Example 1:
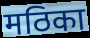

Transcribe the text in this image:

मठिका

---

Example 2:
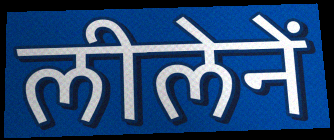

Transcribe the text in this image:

लीलेनें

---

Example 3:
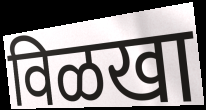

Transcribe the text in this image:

विळखा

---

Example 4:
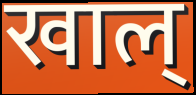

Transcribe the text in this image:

खाल्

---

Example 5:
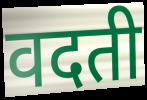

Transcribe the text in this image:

वदती